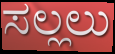
ಸಲ್ಲಲು